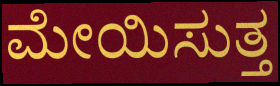
ಮೇಯಿಸುತ್ತ